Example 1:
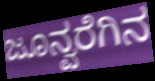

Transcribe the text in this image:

ಜೂನ್ವರೆಗಿನ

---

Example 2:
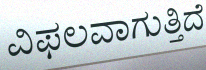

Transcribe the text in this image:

ವಿಫಲವಾಗುತ್ತಿದೆ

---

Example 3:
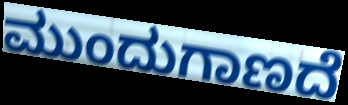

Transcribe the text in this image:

ಮುಂದುಗಾಣದೆ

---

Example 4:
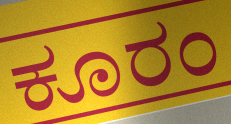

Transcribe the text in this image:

ಕೂರಂ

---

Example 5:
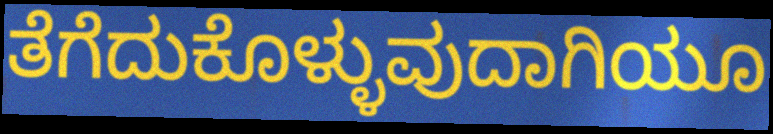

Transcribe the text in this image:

ತೆಗೆದುಕೊಳ್ಳುವುದಾಗಿಯೂ